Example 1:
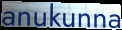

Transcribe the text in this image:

anukunna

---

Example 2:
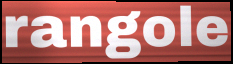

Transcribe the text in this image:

rangole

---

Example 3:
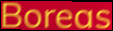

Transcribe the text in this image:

Boreas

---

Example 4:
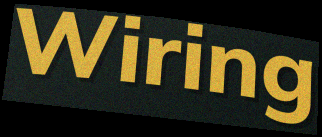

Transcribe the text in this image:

Wiring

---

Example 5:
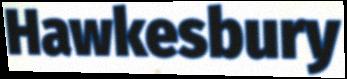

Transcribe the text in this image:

Hawkesbury